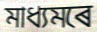
মাধ্যমৰে